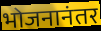
भोजनानंतर